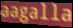
aagalla